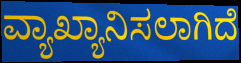
ವ್ಯಾಖ್ಯಾನಿಸಲಾಗಿದೆ